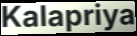
Kalapriya